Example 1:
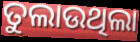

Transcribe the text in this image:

ତୁଲାଉଥିଲା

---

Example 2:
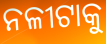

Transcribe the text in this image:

ନଳୀଟାକୁ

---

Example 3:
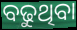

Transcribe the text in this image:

ବଢୁଥିବା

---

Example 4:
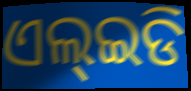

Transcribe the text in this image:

ଏଲ୍ଇଡି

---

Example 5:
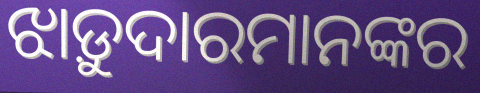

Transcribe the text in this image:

ଝାଡ଼ୁଦାରମାନଙ୍କର